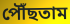
পৌঁছতাম